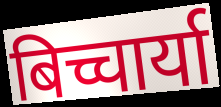
बिच्चार्या